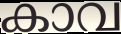
കാവ